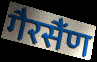
गैरसैंण